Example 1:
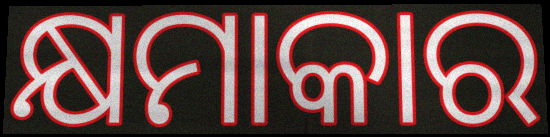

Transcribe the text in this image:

କ୍ଷମାକାର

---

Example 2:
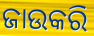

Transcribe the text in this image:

ଜାଉକରି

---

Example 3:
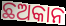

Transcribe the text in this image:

ଛଅକାନ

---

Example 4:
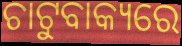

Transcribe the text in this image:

ଚାଟୁବାକ୍ୟରେ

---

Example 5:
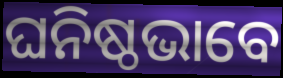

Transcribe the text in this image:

ଘନିଷ୍ଠଭାବେ